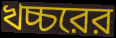
খচ্চরের